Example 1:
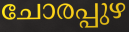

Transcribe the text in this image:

ചോരപ്പുഴ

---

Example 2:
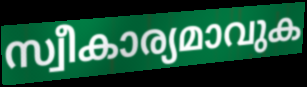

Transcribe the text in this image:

സ്വീകാര്യമാവുക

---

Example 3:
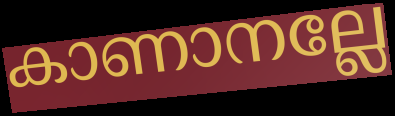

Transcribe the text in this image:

കാണാനല്ലേ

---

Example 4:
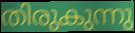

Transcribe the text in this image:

തിരുകുന്നു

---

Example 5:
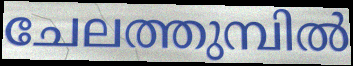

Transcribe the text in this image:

ചേലത്തുമ്പിൽ